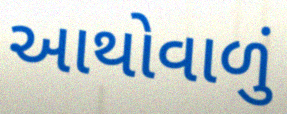
આથોવાળું